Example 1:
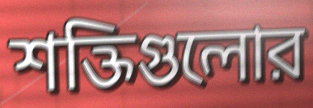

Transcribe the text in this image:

শক্তিগুলোর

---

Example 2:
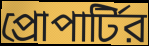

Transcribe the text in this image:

প্রোপার্টির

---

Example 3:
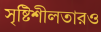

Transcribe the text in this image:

সৃষ্টিশীলতারও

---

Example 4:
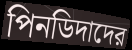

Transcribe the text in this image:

পিনডিদাদের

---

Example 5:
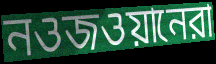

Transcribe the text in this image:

নওজওয়ানেরা